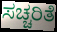
ಸಚ್ಚರಿತೆ